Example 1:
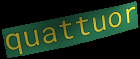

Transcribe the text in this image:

quattuor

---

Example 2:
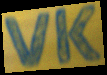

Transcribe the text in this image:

VK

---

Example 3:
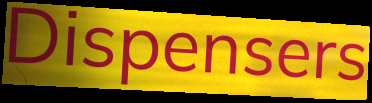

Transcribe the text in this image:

Dispensers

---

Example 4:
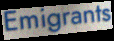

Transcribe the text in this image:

Emigrants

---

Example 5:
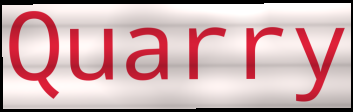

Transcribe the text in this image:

Quarry